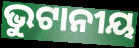
ଭୁଟାନୀୟ